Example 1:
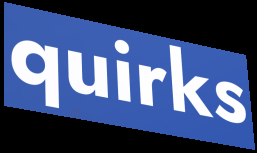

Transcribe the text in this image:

quirks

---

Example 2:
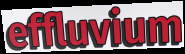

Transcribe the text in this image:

effluvium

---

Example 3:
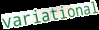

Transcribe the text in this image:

variational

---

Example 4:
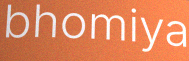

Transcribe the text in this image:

bhomiya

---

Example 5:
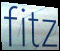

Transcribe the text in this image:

fitz